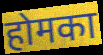
होमका